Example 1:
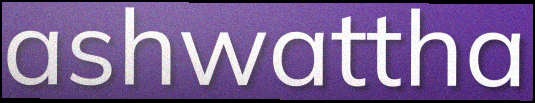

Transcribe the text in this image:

ashwattha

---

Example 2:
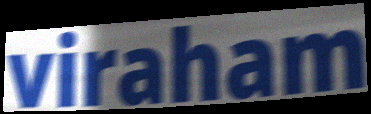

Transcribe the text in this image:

viraham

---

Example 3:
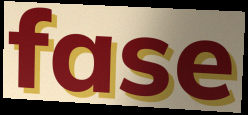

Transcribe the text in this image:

fase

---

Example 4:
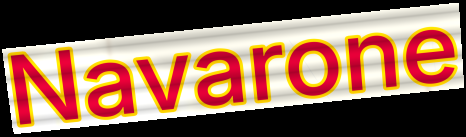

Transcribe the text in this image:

Navarone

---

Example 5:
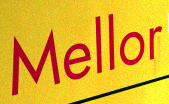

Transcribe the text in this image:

Mellor